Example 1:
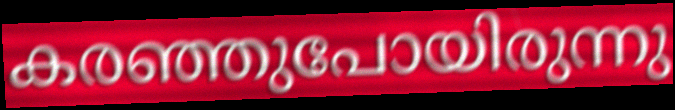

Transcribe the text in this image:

കരഞ്ഞുപോയിരുന്നു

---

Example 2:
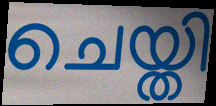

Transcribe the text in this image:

ചെയ്തി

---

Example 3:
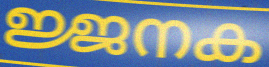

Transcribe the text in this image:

ജ്ജനക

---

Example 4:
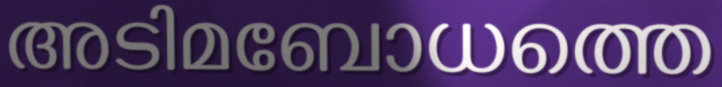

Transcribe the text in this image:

അടിമബോധത്തെ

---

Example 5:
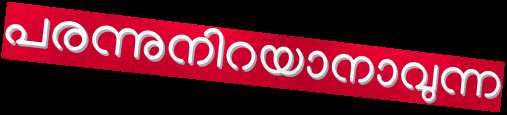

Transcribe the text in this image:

പരന്നുനിറയാനാവുന്ന